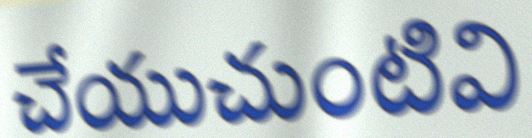
చేయుచుంటివి